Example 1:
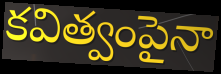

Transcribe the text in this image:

కవిత్వంపైనా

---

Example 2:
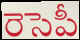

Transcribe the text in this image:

రెసెపీ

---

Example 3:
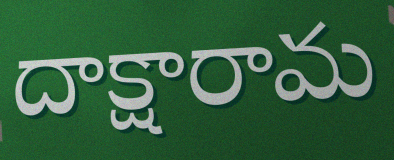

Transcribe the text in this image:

దాక్షారామ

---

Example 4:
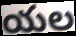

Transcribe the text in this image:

యల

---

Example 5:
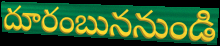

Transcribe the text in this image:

దూరంబుననుండి